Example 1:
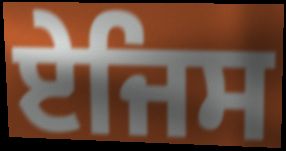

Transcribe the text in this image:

ਏਜਿਸ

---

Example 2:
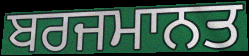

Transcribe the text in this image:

ਬਰਜਮਾਨਤ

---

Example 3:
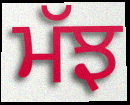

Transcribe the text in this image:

ਮੱਝ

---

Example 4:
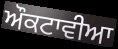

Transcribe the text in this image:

ਔਕਟਾਵੀਆ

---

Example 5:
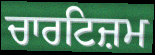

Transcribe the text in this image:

ਚਾਰਟਿਜ਼ਮ